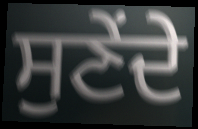
ਸੁਣੇਂਦੇ